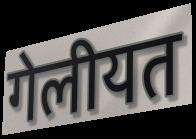
गेलीयत